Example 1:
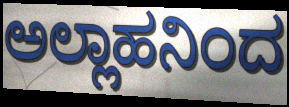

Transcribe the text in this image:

ಅಲ್ಲಾಹನಿಂದ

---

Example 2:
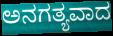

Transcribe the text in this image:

ಅನಗತ್ಯವಾದ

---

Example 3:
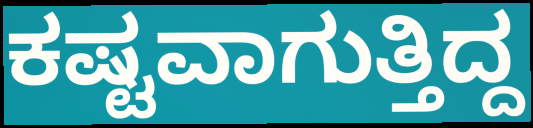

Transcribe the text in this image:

ಕಷ್ಟವಾಗುತ್ತಿದ್ದ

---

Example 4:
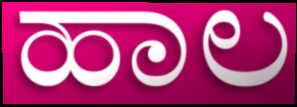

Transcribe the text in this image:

ಹಾಲ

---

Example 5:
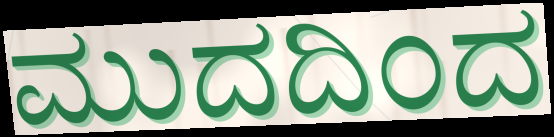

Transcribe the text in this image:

ಮುದದಿಂದ